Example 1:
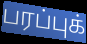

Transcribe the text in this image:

பரப்புக்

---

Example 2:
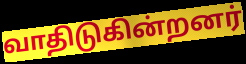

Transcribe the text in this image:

வாதிடுகின்றனர்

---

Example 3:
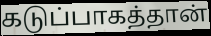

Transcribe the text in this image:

கடுப்பாகத்தான்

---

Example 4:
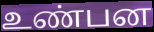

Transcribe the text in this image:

உண்பன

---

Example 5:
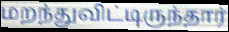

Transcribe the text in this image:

மறந்துவிட்டிருந்தார்